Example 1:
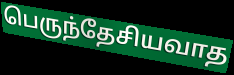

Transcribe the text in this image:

பெருந்தேசியவாத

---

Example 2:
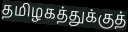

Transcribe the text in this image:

தமிழகத்துக்குத்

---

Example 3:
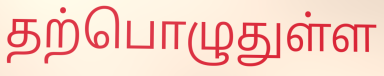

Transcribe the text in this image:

தற்பொழுதுள்ள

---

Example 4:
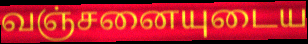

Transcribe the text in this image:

வஞ்சனையுடைய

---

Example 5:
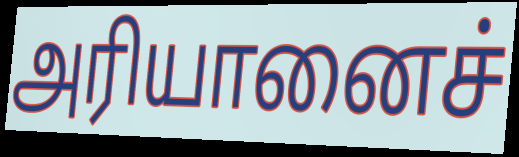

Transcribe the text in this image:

அரியானைச்